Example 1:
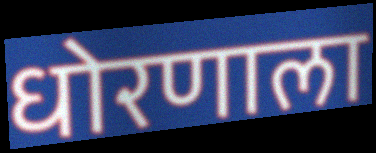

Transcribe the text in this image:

धोरणाला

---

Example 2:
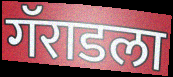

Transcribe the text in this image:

गॅराडला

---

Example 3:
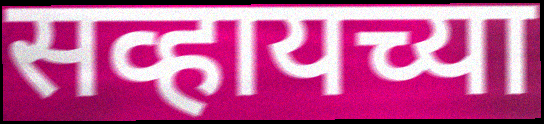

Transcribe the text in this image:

सव्हायच्या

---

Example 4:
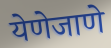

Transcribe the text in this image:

येणेजाणे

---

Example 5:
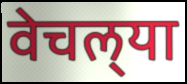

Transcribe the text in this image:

वेचल्या